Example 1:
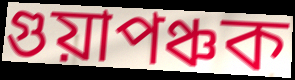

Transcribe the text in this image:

গুয়াপঞ্চক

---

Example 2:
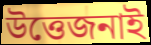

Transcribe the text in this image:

উত্তেজনাই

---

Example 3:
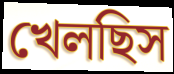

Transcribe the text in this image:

খেলছিস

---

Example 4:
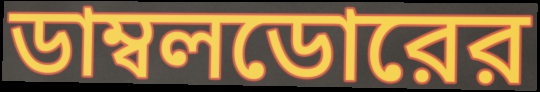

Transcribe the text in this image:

ডাম্বলডোরের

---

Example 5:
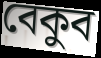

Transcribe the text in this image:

বেকুব